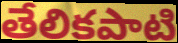
తేలికపాటి